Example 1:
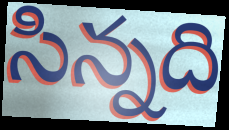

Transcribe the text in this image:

సిన్నది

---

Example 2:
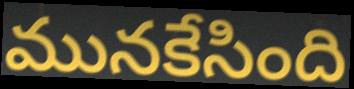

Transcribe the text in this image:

మునకేసింది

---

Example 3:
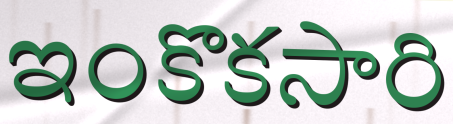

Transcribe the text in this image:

ఇంకొకసారి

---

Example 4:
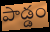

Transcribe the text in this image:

పాడ్డం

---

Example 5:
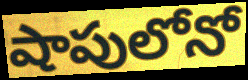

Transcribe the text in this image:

షాపులోనో